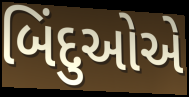
બિંદુઓએ